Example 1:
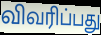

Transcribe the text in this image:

விவரிப்பது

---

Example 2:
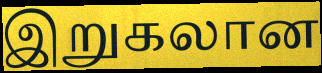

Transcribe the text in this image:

இறுகலான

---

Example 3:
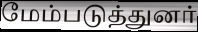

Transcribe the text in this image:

மேம்படுத்துனர்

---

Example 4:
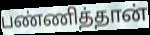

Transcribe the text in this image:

பண்ணித்தான்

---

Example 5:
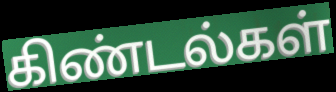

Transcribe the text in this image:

கிண்டல்கள்